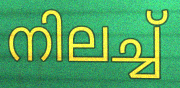
നിലച്ച്